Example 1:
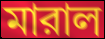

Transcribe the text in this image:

মারাল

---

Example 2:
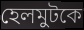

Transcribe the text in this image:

হেলমুটকে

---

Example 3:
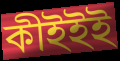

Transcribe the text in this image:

কীইইই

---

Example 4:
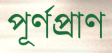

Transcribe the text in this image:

পূর্ণপ্রাণ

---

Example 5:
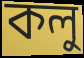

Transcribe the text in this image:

কলু